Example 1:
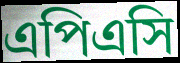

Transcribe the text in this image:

এপিএসি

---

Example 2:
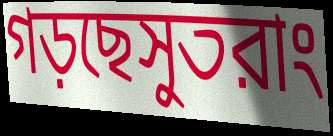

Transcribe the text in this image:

গড়ছেসুতরাং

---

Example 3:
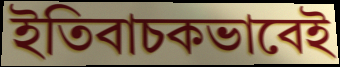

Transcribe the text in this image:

ইতিবাচকভাবেই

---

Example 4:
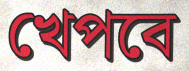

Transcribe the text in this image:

খেপবে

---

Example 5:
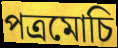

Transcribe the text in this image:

পত্রমোচি